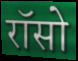
रॉसो